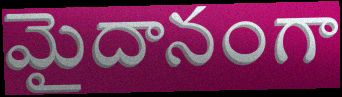
మైదానంగా